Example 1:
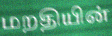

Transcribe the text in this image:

மறதியின்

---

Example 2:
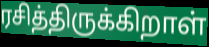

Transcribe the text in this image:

ரசித்திருக்கிறாள்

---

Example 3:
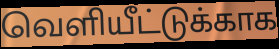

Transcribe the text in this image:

வெளியீட்டுக்காக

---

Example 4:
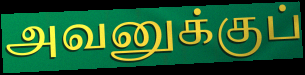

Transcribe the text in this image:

அவனுக்குப்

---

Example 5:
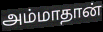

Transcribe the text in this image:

அம்மாதான்